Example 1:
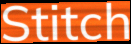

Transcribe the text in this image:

Stitch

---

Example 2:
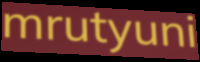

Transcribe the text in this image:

mrutyuni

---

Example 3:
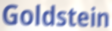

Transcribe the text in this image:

Goldstein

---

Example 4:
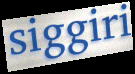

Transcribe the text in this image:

siggiri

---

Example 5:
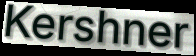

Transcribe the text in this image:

Kershner